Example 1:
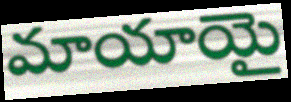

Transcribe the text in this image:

మాయాయై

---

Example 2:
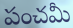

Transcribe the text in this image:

పంచమీ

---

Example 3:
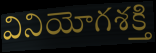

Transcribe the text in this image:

వినియోగశక్తి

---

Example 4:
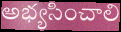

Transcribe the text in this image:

అభ్యసించాలి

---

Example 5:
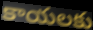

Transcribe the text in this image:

కాయలకు